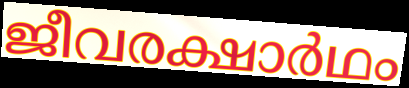
ജീവരക്ഷാർഥം